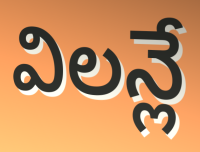
విలన్లే